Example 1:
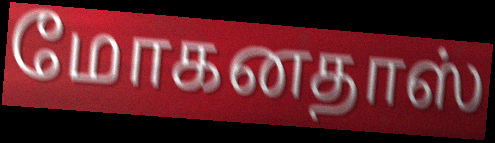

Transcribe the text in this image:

மோகனதாஸ்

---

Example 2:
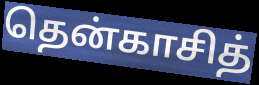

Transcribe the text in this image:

தென்காசித்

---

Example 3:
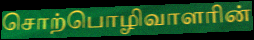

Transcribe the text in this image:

சொற்பொழிவாளரின்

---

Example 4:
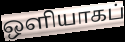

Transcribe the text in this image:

ஒளியாகப்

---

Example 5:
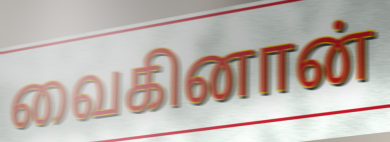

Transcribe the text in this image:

வைகினான்